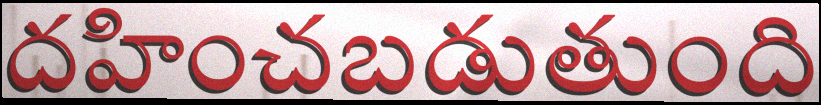
దహించబడుతుంది